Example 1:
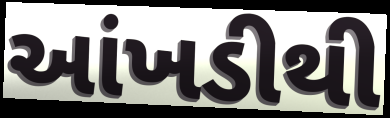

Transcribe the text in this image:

આંખડીથી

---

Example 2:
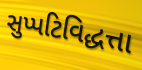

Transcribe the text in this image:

સુપ્પટિવિદ્ધત્તા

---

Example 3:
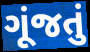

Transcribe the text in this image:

ગૂંજતું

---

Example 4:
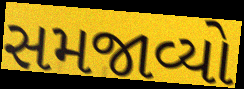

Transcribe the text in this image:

સમજાવ્યો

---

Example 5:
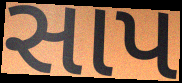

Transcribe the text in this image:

સાપ